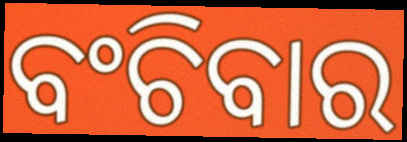
ବଂଚିବାର